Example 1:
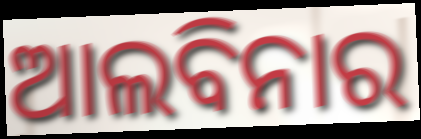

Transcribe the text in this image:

ଆଲବିନାର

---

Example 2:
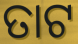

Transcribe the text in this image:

ତାଟ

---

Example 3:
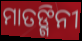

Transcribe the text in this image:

ମାତଙ୍ଗିନୀ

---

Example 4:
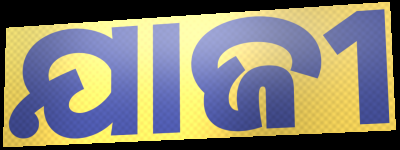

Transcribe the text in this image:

ଯାଜୀ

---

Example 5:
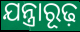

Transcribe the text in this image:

ଯନ୍ତ୍ରାରୂଢ଼